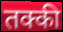
तक्की